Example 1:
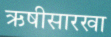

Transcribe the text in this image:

ऋषीसारखा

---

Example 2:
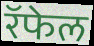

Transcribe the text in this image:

रॅफेल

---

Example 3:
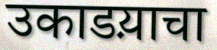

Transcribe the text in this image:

उकाडय़ाचा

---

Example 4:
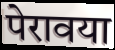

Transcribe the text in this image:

पेरावया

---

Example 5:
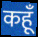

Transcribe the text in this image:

कहूँ